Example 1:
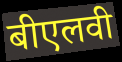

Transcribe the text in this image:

बीएलवी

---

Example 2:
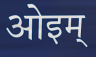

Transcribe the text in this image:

ओइम्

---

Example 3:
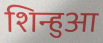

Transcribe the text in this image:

शिन्‍हुआ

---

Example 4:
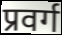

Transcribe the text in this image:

प्रवर्ग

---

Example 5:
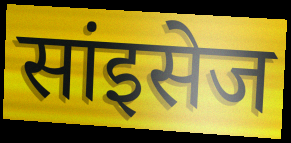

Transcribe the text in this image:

सांइसेज